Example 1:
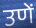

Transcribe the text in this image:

उणें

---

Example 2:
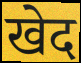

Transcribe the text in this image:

खेद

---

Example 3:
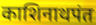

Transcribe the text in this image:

काशिनाथपंत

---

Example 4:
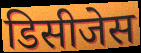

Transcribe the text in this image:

डिसीजेस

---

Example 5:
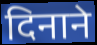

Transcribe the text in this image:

दिनाने